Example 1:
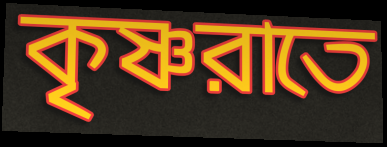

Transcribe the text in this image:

কৃষ্ণরাতে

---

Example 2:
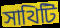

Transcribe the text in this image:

সাথিটি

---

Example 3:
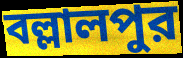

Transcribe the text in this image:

বল্লালপুর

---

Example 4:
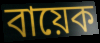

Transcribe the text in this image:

বায়েক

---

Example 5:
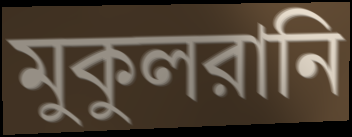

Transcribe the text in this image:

মুকুলরানি